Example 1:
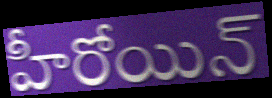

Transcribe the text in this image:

హీరోయిన్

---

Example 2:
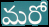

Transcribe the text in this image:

మరో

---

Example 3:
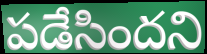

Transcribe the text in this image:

పడేసిందని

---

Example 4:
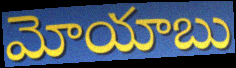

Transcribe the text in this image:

మోయాబు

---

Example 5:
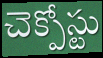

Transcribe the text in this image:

చెక్పోస్టు